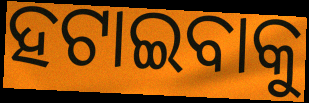
ହଟାଇବାକୁ